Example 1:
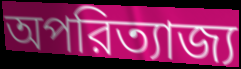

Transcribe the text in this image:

অপরিত্যাজ্য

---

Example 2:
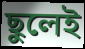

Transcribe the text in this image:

ছুলেই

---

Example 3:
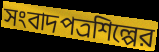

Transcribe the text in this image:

সংবাদপত্রশিল্পের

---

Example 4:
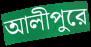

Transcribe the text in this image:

আলীপুরে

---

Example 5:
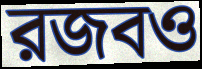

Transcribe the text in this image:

রজবও